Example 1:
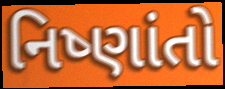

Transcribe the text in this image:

નિષ્ણાંતો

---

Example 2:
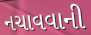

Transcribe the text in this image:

નચાવવાની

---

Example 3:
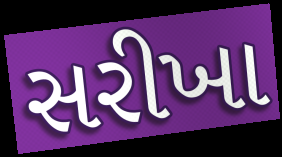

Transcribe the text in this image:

સરીખા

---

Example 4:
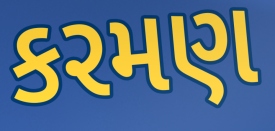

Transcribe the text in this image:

કરમણ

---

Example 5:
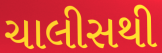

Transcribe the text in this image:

ચાલીસથી